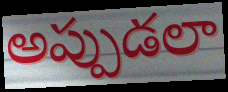
అప్పుడలా